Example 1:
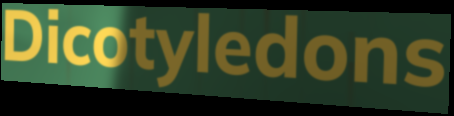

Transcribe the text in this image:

Dicotyledons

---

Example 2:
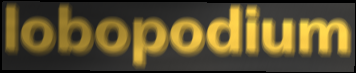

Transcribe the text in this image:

lobopodium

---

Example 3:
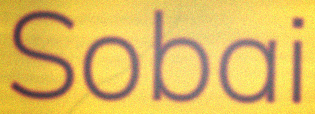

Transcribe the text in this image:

Sobai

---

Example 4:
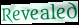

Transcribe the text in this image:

Revealed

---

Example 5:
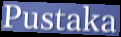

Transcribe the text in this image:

Pustaka